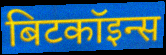
बिटकॉइन्स